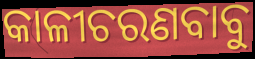
କାଳୀଚରଣବାବୁ